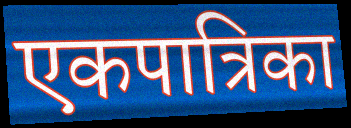
एकपात्रिका